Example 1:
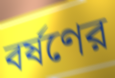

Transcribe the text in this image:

বর্ষণের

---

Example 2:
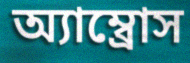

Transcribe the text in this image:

অ্যাম্ব্রোস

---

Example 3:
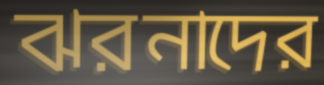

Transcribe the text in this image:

ঝরনাদের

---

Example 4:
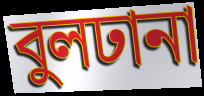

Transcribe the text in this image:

বুলঢানা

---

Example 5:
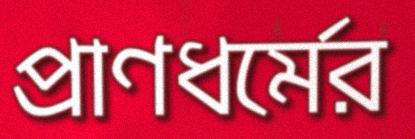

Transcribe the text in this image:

প্রাণধর্মের